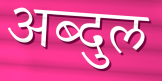
अब्दुल